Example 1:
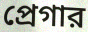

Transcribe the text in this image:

প্রেগার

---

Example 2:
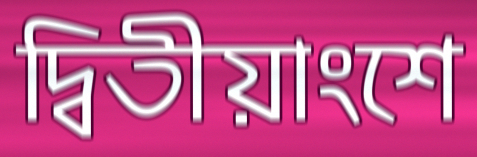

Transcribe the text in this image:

দ্বিতীয়াংশে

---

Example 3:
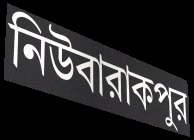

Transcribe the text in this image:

নিউবারাকপুর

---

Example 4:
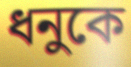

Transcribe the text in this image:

ধনুকে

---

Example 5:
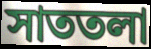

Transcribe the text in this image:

সাততলা